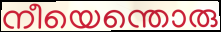
നീയെന്തൊരു